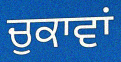
ਚੁਕਾਵਾਂ